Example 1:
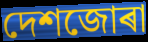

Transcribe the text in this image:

দেশজোৰা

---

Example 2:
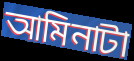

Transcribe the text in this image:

আমিনাটা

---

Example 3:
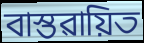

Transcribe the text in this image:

বাস্তৱায়িত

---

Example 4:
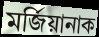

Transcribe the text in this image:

মৰ্জিয়ানাক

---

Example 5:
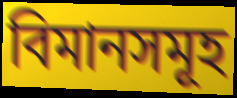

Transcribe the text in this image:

বিমানসমূহ